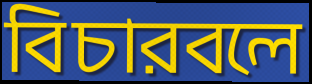
বিচারবলে